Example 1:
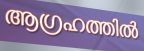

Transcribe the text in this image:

ആഗ്രഹത്തിൽ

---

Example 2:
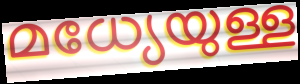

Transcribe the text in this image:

മധ്യേയുള്ള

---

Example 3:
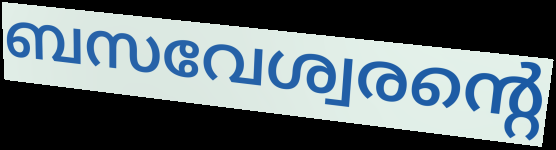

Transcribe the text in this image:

ബസവേശ്വരന്റെ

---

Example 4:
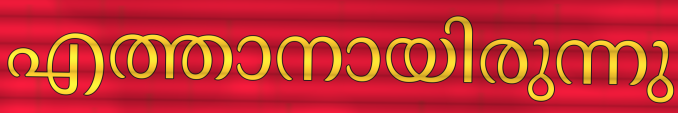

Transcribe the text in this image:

എത്താനായിരുന്നു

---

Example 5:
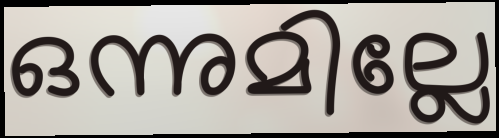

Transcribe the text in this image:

ഒന്നുമില്ലേ